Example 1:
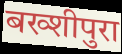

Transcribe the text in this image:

बख्शीपुरा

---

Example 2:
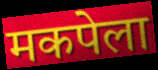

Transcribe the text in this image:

मकपेला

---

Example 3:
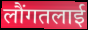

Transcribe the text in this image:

लौंगतलाई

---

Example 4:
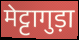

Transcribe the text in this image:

मेट्टागुड़ा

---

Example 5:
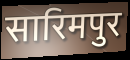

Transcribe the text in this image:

सारिमपुर